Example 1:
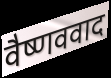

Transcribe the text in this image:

वैष्णववाद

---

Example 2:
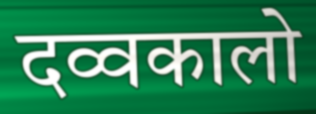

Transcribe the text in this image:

दव्वकालो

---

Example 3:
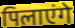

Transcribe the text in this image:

पिलाएंगे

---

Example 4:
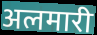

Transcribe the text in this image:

अलमारी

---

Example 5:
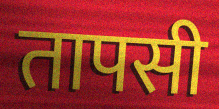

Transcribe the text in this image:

तापसी